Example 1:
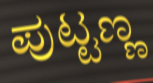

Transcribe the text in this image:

ಪುಟ್ಟಣ್ಣ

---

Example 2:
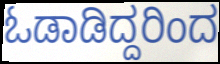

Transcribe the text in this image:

ಓಡಾಡಿದ್ದರಿಂದ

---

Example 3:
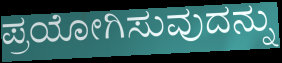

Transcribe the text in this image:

ಪ್ರಯೋಗಿಸುವುದನ್ನು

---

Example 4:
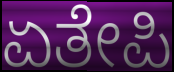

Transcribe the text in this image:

ಏತೇಪಿ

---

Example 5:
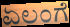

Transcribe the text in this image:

ಏಲಂಗೆ